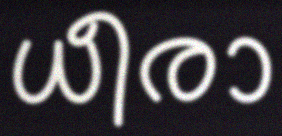
ധീരാ